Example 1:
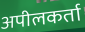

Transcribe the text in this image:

अपीलकर्ता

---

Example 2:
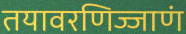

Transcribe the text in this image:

तयावरणिज्जाणं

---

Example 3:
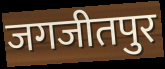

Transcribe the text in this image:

जगजीतपुर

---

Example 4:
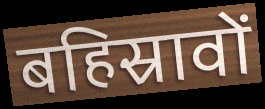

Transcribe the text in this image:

बहिस्रावों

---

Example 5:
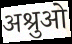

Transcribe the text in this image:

अश्रुओ